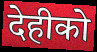
देहीको